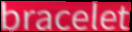
bracelet